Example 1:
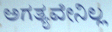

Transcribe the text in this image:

ಅಗತ್ಯವೇನಿಲ್ಲ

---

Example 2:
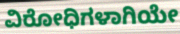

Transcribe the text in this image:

ವಿರೋಧಿಗಳಾಗಿಯೇ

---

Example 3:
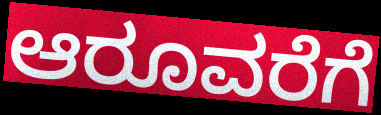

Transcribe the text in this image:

ಆರೂವರೆಗೆ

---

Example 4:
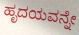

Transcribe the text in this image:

ಹೃದಯವನ್ನೇ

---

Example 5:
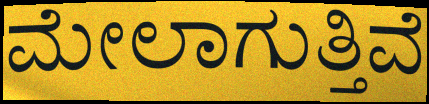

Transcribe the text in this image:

ಮೇಲಾಗುತ್ತಿವೆ